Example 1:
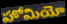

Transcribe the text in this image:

హోమియో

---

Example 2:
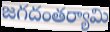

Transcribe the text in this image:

జగదంతర్యామి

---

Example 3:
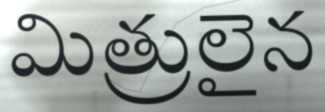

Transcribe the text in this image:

మిత్రులైన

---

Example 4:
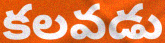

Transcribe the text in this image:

కలవడు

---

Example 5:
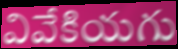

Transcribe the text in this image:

వివేకియగు